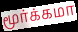
மூர்க்கமா